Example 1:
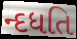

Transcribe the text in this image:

ન્દધતિ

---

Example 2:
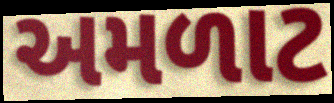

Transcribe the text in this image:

અમળાટ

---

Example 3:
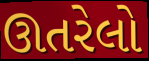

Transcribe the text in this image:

ઊતરેલો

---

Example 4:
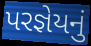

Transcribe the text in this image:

પરજ્ઞેયનું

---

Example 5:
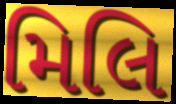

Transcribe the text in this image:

મિલિ